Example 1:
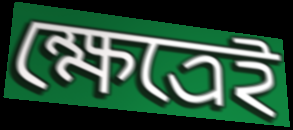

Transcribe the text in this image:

ক্ষেত্ৰেই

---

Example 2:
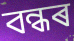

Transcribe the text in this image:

বন্ধৰ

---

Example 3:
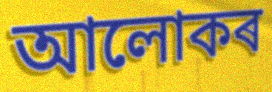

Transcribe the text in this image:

আলোকৰ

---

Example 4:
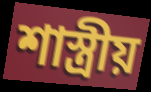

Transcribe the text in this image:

শাস্ত্ৰীয়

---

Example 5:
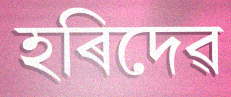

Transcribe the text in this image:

হৰিদেৱ